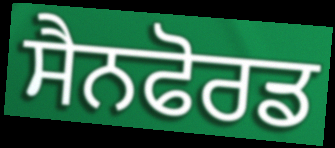
ਸੈਨਫੋਰਡ